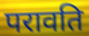
परावति